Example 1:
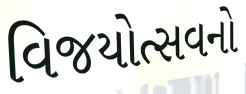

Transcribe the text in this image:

વિજયોત્સવનો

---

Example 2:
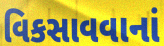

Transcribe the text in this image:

વિકસાવવાનાં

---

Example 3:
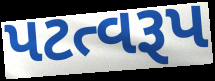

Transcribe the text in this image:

પટત્વરૂપ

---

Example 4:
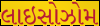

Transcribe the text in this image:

લાઇસોઝોમ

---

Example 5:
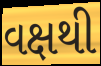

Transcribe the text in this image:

વક્ષથી